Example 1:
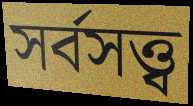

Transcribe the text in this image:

সর্বসত্ত্ব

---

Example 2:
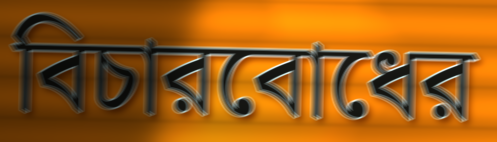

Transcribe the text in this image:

বিচারবোধের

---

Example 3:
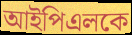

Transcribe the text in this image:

আইপিএলকে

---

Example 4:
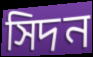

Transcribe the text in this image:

সিদন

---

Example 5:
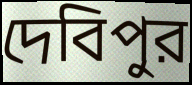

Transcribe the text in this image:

দেবিপুর